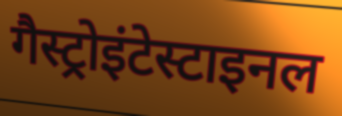
गैस्ट्रोइंटेस्टाइनल